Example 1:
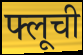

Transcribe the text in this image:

फ्लूची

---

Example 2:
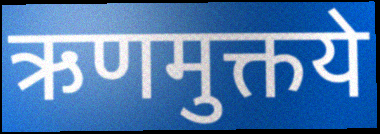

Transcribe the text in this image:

ऋणमुक्तये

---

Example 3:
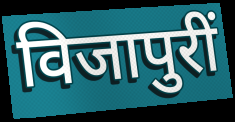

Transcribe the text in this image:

विजापुरीं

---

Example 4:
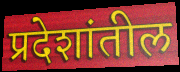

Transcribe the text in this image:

प्रदेशांतील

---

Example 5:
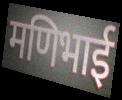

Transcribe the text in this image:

मणिभाई